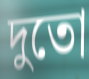
দুতো